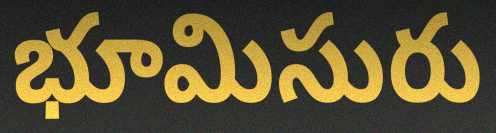
భూమిసురు